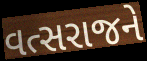
વત્સરાજને